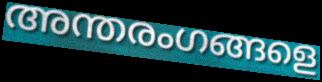
അന്തരംഗങ്ങളെ